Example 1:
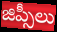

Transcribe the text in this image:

జిప్సీలు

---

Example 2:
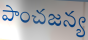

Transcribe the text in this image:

పాంచజన్య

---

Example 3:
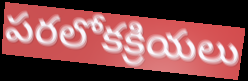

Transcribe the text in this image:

పరలోకక్రియలు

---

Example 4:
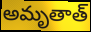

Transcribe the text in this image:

అమృతాత్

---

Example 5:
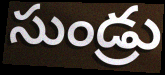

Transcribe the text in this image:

సుండ్రు